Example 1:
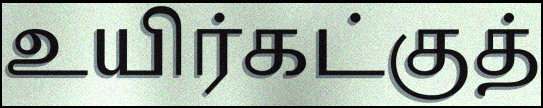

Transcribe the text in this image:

உயிர்கட்குத்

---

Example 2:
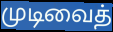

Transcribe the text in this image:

முடிவைத்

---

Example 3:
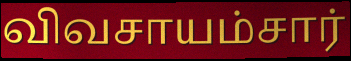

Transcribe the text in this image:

விவசாயம்சார்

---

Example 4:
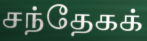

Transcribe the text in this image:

சந்தேகக்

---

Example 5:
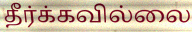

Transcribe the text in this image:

தீர்க்கவில்லை